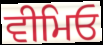
ਵੀਮਿਓ